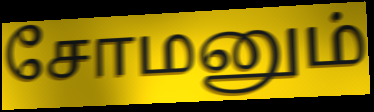
சோமனும்